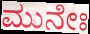
ಮುನೇಃ